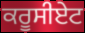
ਕਰੂਸੀਏਟ